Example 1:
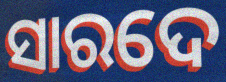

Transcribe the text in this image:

ସାରଦେ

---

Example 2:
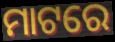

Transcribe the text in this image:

ମାଟରେ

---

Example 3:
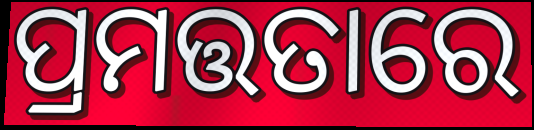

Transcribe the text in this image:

ପ୍ରମତ୍ତତାରେ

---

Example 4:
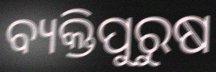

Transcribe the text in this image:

ବ୍ୟକ୍ତିପୁରୁଷ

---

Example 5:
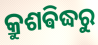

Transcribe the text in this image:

କ୍ରୁଶଵିଦ୍ଧରୁ